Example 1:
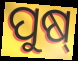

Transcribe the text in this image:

ପୁଷ୍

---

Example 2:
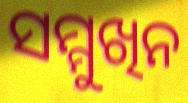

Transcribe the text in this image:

ସମ୍ମୁଖିନ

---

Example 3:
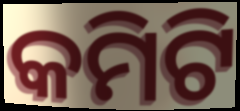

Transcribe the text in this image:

କମିଟି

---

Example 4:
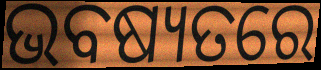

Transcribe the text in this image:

ଭବଷ୍ୟତରେ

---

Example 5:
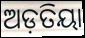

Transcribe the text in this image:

ଅଡ଼ତିୟା